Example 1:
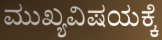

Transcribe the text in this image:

ಮುಖ್ಯವಿಷಯಕ್ಕೆ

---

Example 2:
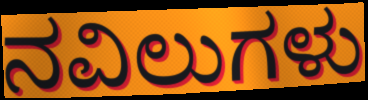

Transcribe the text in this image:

ನವಿಲುಗಳು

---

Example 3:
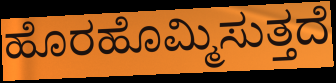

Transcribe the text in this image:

ಹೊರಹೊಮ್ಮಿಸುತ್ತದೆ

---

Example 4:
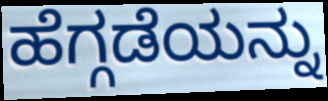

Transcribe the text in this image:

ಹೆಗ್ಗಡೆಯನ್ನು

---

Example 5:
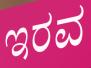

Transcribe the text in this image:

ಇರವ